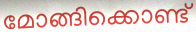
മോങ്ങിക്കൊണ്ട്